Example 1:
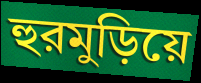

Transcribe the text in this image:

হুরমুড়িয়ে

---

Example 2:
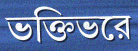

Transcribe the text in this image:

ভক্তিভরে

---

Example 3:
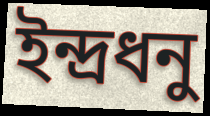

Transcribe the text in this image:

ইন্দ্রধনু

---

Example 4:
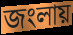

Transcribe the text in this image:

জংলায়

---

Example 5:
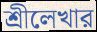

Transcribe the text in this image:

শ্রীলেখার